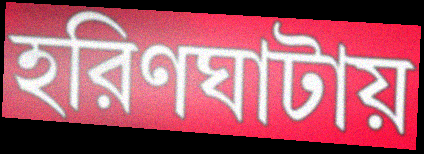
হরিণঘাটায়